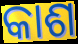
କାଶ